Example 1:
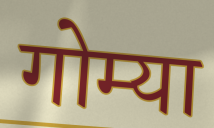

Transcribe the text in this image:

गोम्या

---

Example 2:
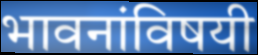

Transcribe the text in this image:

भावनांविषयी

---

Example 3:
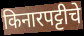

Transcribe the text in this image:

किनारपट्टीचे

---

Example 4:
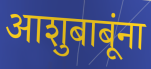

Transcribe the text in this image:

आशुबाबूंना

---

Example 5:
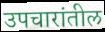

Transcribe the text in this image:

उपचारांतील